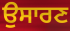
ਉਸਾਰਣ